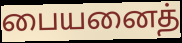
பையனைத்